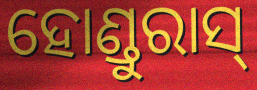
ହୋଣ୍ଡୁରାସ୍